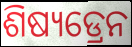
ଶିଷ୍ୟଡ୍ରେନ